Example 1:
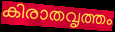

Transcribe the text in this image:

കിരാതവൃത്തം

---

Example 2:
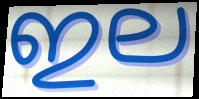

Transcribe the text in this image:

ഇല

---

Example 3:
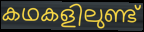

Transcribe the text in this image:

കഥകളിലുണ്ട്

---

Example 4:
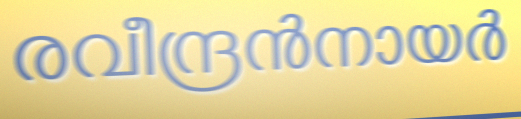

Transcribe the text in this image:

രവീന്ദ്രൻനായർ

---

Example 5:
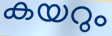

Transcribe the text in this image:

കയറും